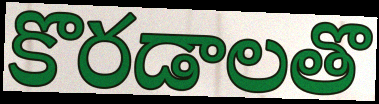
కొరడాలతొ